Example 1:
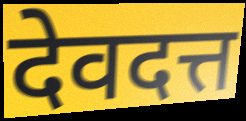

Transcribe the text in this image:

देवदत्त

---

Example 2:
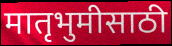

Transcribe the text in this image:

मातृभुमीसाठी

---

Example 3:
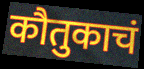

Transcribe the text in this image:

कौतुकाचं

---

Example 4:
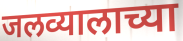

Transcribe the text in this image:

जलव्यालाच्या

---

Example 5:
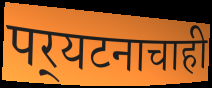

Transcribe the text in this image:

पर्यटनाचाही